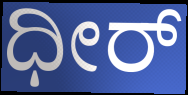
ಧೀರ್